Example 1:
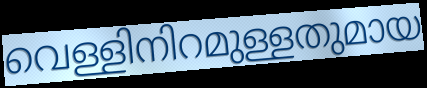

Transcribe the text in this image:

വെള്ളിനിറമുള്ളതുമായ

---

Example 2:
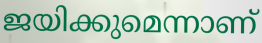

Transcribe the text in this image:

ജയിക്കുമെന്നാണ്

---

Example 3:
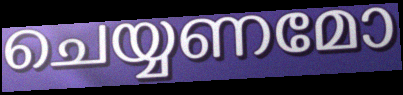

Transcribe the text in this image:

ചെയ്യണമോ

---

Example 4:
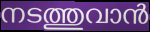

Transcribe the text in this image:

നടത്തുവാൻ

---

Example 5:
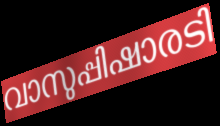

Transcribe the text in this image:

വാസുപ്പിഷാരടി